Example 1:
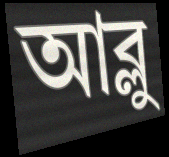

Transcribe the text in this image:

আব্লু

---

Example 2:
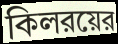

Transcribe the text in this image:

কিলরয়ের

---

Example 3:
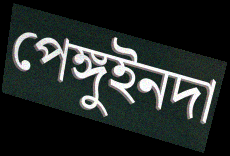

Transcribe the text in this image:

পেঙ্গুইনদা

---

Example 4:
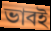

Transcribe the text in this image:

ভাবই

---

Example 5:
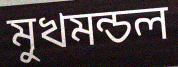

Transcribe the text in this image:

মুখমন্ডল